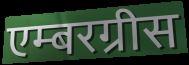
एम्बरग्रीस